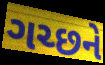
ગચ્છને